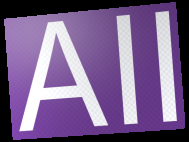
AII